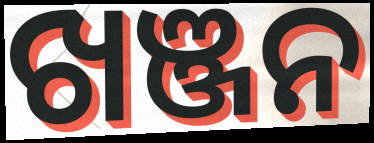
ଖଞ୍ଜନ